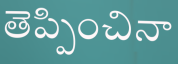
తెప్పించినా